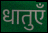
धातुएँ